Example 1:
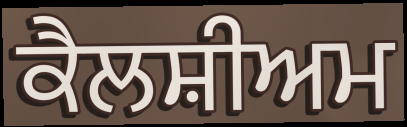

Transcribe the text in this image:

ਕੈਲਸ਼ੀਅਮ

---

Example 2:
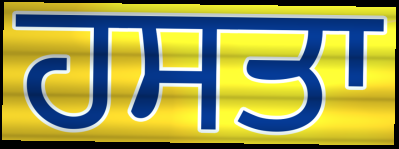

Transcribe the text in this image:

ਹਸਤਾ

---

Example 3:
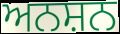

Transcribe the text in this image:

ਅਨਸ਼ਨ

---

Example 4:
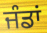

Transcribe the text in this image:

ਜੰਡਾਂ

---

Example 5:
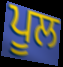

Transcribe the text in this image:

ਪੂਲ